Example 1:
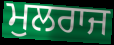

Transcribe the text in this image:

ਮੁਲਰਾਜ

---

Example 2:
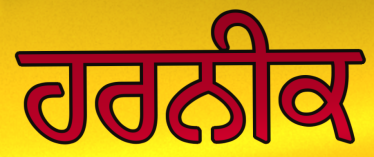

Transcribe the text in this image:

ਹਰਨੀਕ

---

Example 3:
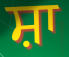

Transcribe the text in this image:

ਸ਼ਾ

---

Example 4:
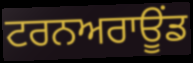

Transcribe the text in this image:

ਟਰਨਅਰਾਊਂਡ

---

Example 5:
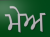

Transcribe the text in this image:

ਮੇਅ